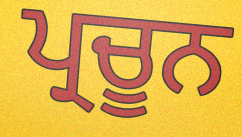
ਪ੍ਰਚੂਨ